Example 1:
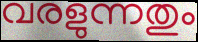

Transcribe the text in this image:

വരളുന്നതും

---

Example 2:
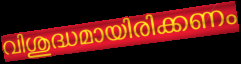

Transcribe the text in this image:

വിശുദ്ധമായിരിക്കണം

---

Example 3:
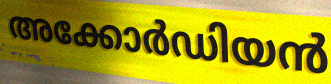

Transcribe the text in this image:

അക്കോർഡിയൻ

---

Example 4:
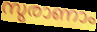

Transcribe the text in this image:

സുരാണാം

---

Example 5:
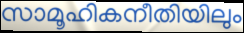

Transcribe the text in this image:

സാമൂഹികനീതിയിലും